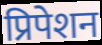
प्रिपेशन